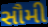
સૌમી